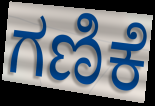
ಗಣಿಕೆ